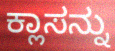
ಕ್ಲಾಸನ್ನು